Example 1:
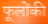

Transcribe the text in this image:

फूलोंकी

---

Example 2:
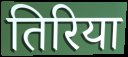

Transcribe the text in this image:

तिरिया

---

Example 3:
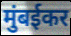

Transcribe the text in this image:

मुंबईकर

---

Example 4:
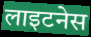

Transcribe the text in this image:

लाइटनेस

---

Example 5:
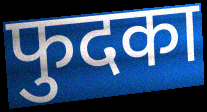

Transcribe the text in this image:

फुदका